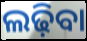
ଲଢ଼ିବା